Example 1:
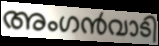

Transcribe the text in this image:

അംഗൻവാടി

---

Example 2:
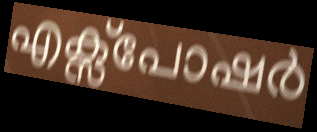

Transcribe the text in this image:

എക്സ്പോഷർ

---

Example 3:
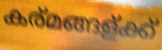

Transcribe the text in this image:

കര്മങ്ങള്ക്ക്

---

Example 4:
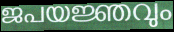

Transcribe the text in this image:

ജപയജ്ഞവും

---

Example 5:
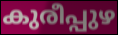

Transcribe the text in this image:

കുരീപ്പുഴ